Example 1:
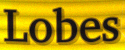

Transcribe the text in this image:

Lobes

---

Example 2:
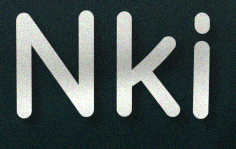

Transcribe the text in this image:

Nki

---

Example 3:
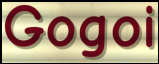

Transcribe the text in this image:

Gogoi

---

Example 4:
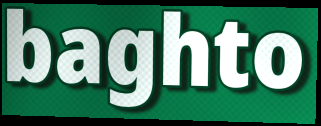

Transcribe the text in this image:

baghto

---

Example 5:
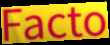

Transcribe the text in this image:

Facto